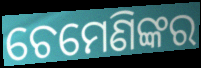
ଚେମେଣିଙ୍କର